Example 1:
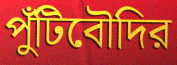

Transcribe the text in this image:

পুঁটিবৌদির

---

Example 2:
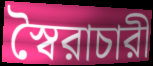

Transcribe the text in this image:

স্বৈরাচারী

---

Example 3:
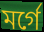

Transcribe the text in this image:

মর্গে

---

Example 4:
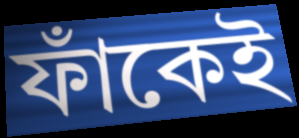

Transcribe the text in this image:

ফাঁকেই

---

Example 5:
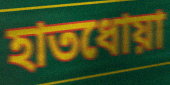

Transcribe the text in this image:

হাতধোয়া